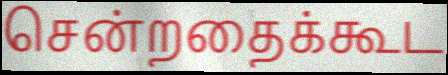
சென்றதைக்கூட